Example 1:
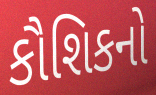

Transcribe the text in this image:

કૌશિકનો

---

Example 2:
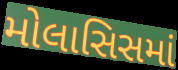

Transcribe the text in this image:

મોલાસિસમાં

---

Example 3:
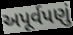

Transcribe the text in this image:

અપૂર્વપણું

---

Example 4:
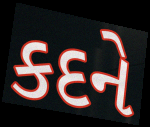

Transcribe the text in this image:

કદને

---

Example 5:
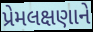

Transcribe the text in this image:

પ્રેમલક્ષણાને